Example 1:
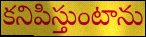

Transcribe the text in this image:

కనిపిస్తుంటాను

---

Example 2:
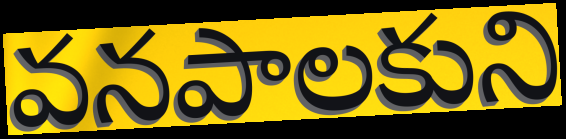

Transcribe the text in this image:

వనపాలకుని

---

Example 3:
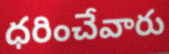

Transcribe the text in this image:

ధరించేవారు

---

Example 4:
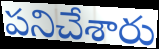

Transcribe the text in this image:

పనిచేశారు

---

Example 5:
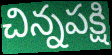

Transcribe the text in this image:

చిన్నపక్షి